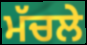
ਮੱਚਲੇ